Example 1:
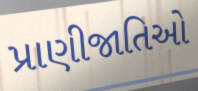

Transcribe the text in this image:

પ્રાણીજાતિઓ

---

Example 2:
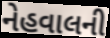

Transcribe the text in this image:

નેહવાલની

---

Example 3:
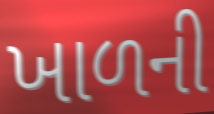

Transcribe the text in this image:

ખાળની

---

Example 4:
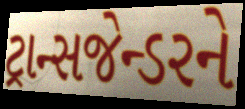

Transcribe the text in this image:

ટ્રાન્સજેન્ડરને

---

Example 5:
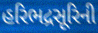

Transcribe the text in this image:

હરિભદ્રસૂરિની